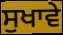
ਸੁਖਾਵੇ